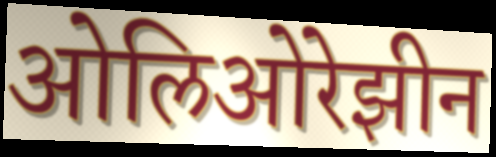
ओलिओरेझीन